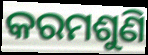
କରମଶୁଣି